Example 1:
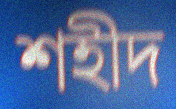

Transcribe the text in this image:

শহীদ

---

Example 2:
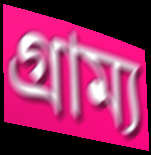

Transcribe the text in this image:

গ্ৰাম্য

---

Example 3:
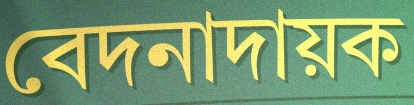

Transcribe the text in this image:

বেদনাদায়ক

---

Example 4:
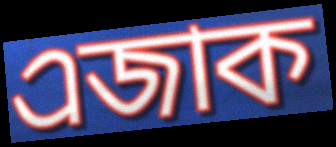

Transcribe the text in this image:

এজাক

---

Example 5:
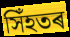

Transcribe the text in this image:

সিঁহতৰ